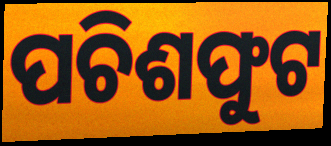
ପଚିଶଫୁଟ